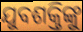
ଯୁବଶକ୍ତିଙ୍କୁ